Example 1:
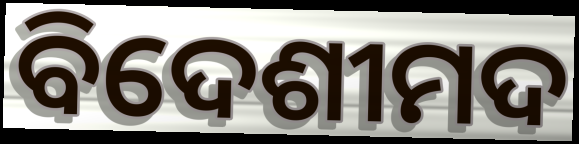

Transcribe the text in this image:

ବିଦେଶୀମଦ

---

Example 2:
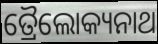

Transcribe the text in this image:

ତ୍ରୈଲୋକ୍ୟନାଥ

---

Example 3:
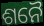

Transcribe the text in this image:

ଶନୈ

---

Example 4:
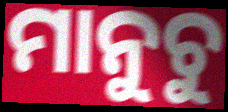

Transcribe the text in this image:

ମାନୁଚୁ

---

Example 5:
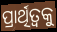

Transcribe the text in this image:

ପ୍ରାର୍ଥିତ୍ୱକୁ